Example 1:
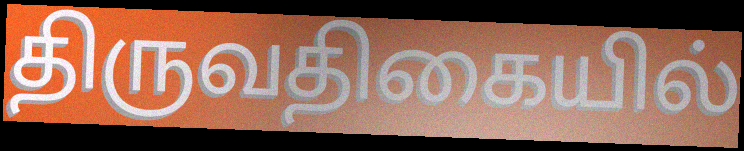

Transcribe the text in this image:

திருவதிகையில்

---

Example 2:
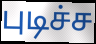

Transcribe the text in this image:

புடிச்ச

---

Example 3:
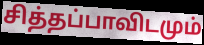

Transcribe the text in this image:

சித்தப்பாவிடமும்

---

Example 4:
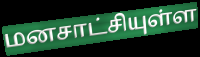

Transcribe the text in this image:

மனசாட்சியுள்ள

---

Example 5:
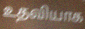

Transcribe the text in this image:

உதவியாக